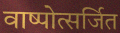
वाष्पोत्सर्जित